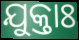
ଯୁକ୍ତାଃ